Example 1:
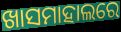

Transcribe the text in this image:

ଖାସମାହାଲରେ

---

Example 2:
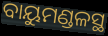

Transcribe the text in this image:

ବାୟୁମଣ୍ଡଳସ୍ଥ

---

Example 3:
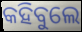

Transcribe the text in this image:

କହିବୁଲେ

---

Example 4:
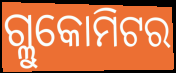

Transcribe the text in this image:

ଗ୍ଲୁକୋମିଟର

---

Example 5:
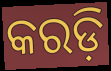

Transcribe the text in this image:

କରଡ଼ି